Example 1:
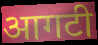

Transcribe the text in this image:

आगटी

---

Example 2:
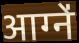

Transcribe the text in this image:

आग्ने॑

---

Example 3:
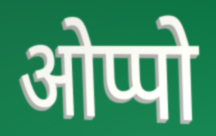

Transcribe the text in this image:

ओप्पो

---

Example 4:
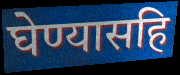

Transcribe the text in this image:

घेण्यासहि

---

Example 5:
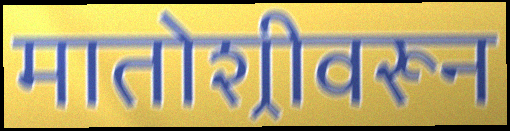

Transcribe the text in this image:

मातोश्रीवरून